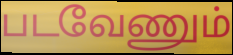
படவேணும்